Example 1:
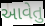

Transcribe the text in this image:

આવેતુ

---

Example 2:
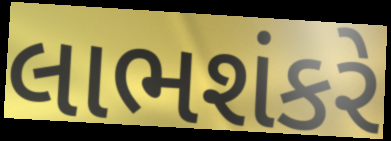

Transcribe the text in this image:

લાભશંકરે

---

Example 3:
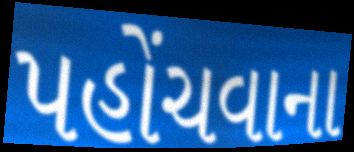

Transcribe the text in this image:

પહોંચવાના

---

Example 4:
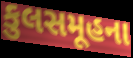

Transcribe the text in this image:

કુલસમૂહના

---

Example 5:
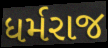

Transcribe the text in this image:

ધર્મરાજ